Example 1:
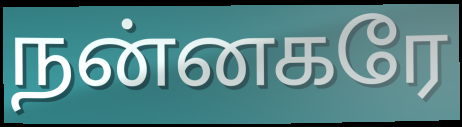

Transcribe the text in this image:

நன்னகரே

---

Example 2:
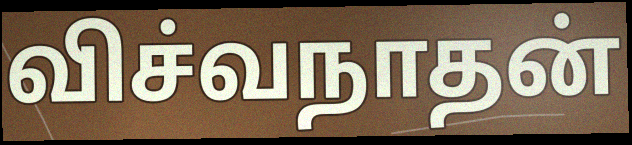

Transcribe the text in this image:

விச்வநாதன்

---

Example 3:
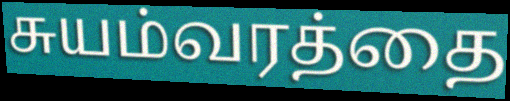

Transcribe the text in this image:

சுயம்வரத்தை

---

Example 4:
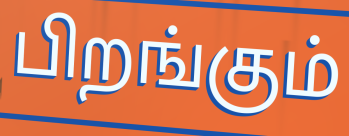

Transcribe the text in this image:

பிறங்கும்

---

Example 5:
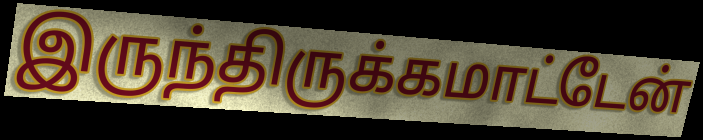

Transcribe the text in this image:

இருந்திருக்கமாட்டேன்